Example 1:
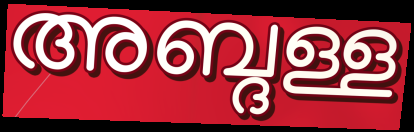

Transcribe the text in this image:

അബ്ദള്ള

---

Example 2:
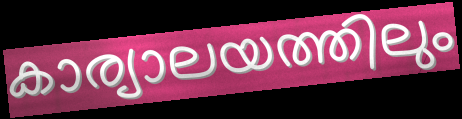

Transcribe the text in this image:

കാര്യാലയത്തിലും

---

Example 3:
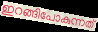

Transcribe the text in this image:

ഇറങ്ങിപോകുന്നത്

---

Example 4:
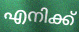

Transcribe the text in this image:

എനിക്ക്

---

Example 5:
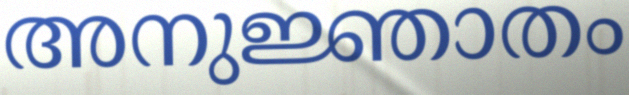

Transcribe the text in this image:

അനുജ്ഞാതം